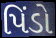
પિંડો